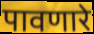
पावणारे